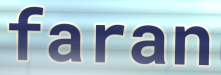
faran